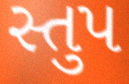
સ્તુપ